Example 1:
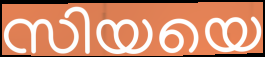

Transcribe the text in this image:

സിയയെ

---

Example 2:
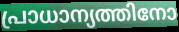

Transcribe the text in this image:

പ്രാധാന്യത്തിനോ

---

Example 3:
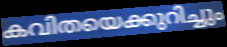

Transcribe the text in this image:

കവിതയെക്കുറിച്ചും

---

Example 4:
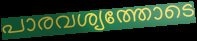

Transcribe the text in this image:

പാരവശ്യത്തോടെ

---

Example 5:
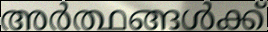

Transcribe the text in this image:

അർത്ഥങ്ങൾക്ക്